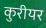
कुरीयर